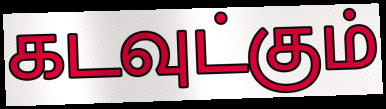
கடவுட்கும்